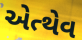
એત્થેવ